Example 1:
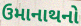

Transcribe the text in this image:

ઉમાનાથનો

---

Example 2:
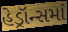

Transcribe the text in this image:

હેડ્રૉન્સમાં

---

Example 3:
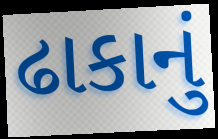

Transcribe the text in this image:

ઢાકાનું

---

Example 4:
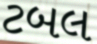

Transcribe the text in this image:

ટબલ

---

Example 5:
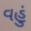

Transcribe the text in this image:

વહું